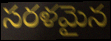
సరళమైన